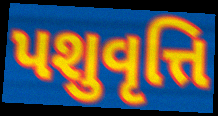
પશુવૃત્તિ